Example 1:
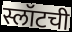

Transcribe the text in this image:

स्लॉटची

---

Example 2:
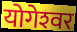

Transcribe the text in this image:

योगेश्‍वर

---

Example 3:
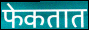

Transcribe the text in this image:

फेकतात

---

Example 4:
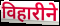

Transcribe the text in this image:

विहारीने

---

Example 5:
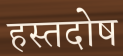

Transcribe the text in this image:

हस्तदोष